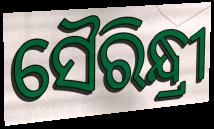
ସୈରିନ୍ଧ୍ରୀ